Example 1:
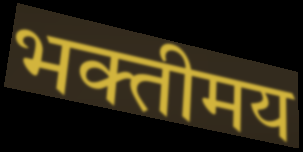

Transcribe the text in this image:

भक्तीमय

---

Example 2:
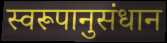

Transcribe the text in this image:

स्वरूपानुसंधान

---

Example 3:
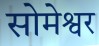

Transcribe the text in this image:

सोमेश्वर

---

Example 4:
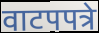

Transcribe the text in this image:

वाटपपत्रे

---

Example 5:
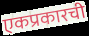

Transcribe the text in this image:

एकप्रकारची